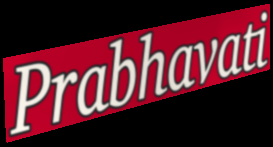
Prabhavati